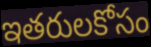
ఇతరులకోసం